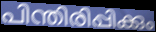
പിന്തിരിപ്പിക്കും